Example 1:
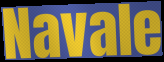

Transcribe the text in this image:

Navale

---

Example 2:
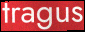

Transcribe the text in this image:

tragus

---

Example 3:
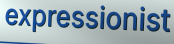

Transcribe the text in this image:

expressionist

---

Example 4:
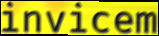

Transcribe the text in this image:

invicem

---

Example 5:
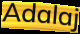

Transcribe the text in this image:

Adalaj